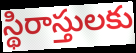
స్థిరాస్తులకు